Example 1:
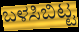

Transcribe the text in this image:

ಬಳಸಿಬಿಟ್ಟ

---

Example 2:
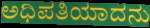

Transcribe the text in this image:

ಅಧಿಪತಿಯಾದನು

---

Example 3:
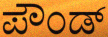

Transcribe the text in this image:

ಪೌಂಡ್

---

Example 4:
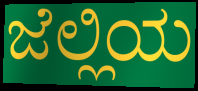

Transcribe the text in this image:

ಜೆಲ್ಲಿಯ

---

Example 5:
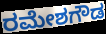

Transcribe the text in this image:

ರಮೇಶಗೌಡ